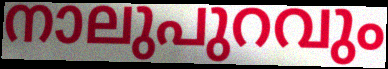
നാലുപുറവും